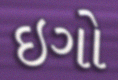
ઇગો